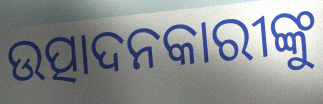
ଉତ୍ପାଦନକାରୀଙ୍କୁ